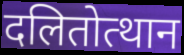
दलितोत्थान